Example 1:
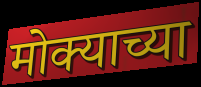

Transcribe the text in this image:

मोक्याच्या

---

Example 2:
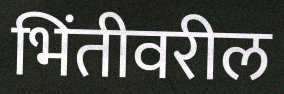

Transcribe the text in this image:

भिंतीवरील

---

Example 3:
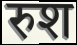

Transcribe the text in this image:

रुश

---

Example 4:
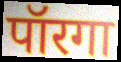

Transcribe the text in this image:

पॉरगा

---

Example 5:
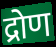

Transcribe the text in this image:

द्रोण